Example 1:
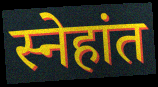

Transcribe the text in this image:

स्नेहांत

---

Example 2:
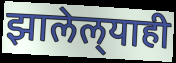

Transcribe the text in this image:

झालेल्याही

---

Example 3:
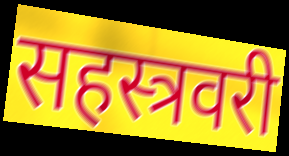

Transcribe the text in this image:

सहस्त्रवरी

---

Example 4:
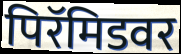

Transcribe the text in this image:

पिरॅमिडवर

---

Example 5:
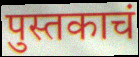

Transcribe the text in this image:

पुस्तकाचं